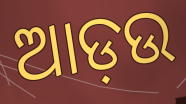
ଆଡ଼ଉ